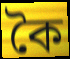
কৈ